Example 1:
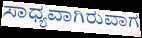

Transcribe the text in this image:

ಸಾಧ್ಯವಾಗಿರುವಾಗ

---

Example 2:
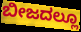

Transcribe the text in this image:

ಬೀಜದಲ್ಲೂ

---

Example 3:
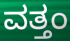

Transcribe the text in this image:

ವತ್ತಂ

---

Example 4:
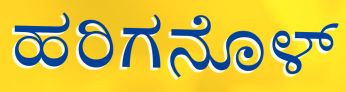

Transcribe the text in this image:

ಹರಿಗನೊಳ್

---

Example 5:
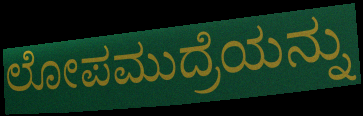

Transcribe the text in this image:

ಲೋಪಮುದ್ರೆಯನ್ನು